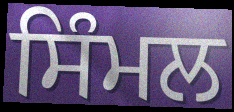
ਸਿੰਮਲ